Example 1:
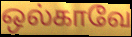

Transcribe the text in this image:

ஒல்காவே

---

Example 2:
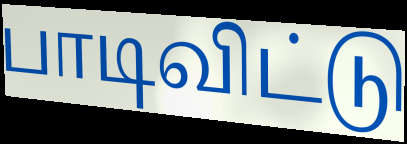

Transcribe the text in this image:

பாடிவிட்டு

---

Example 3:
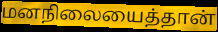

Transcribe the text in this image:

மனநிலையைத்தான்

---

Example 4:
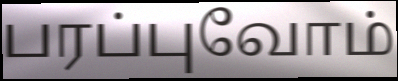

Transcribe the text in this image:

பரப்புவோம்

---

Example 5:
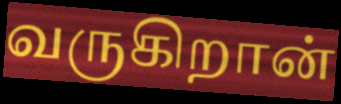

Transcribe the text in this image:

வருகிறான்